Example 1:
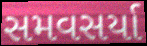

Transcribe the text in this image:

સમવસર્યા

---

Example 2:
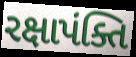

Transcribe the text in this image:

રક્ષાપંક્તિ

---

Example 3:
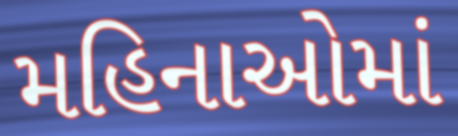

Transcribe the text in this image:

મહિનાઓમાં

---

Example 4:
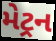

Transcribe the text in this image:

મેટ્રન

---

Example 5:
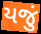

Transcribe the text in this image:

યજું